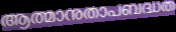
ആത്മാനുതാപബദ്ധത